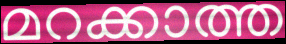
മറക്കാത്ത